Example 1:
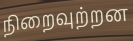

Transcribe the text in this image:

நிறைவுற்றன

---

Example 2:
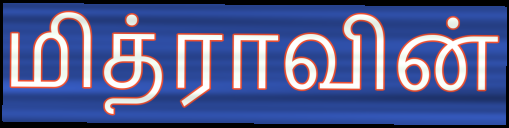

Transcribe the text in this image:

மித்ராவின்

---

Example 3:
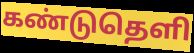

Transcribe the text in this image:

கண்டுதெளி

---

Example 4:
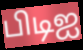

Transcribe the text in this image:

பிடிஐ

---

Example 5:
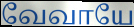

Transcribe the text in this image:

வேவாயே